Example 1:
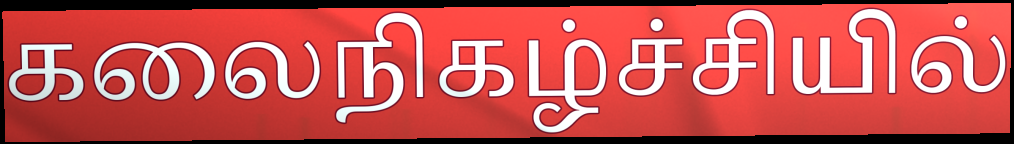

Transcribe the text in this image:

கலைநிகழ்ச்சியில்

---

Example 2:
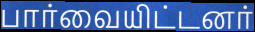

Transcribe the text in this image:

பார்வையிட்டனர்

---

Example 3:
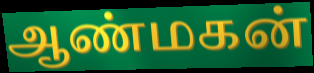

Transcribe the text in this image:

ஆண்மகன்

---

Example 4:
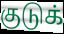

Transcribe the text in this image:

குடுக்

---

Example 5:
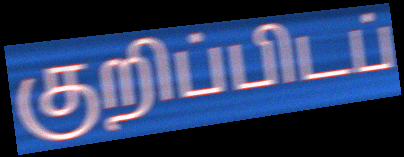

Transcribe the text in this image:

குறிப்பிடப்